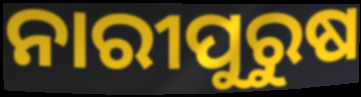
ନାରୀପୁରୁଷ